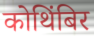
कोथिंबिर